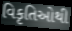
વિકૃતિઓથી